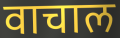
वाचाल